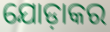
ଯୋଡ଼ାକର